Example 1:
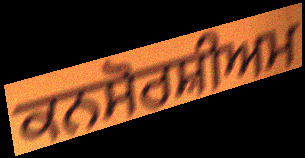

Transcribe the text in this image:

ਕਨਸੋਰਸ਼ੀਅਮ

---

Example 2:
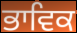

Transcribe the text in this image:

ਭਾਵਿਕ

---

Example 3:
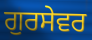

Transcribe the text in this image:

ਗੁਰਸੇਵਰ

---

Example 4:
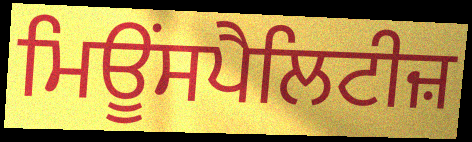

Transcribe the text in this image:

ਮਿਊਂਸਪੈਲਿਟੀਜ਼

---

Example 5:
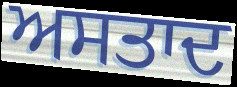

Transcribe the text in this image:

ਅਸਤਾਦ